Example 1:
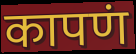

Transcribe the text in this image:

कापणं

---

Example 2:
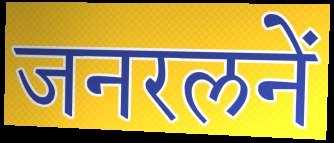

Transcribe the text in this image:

जनरलनें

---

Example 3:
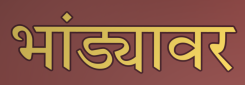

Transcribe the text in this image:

भांड्यावर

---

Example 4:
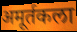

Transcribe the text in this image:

अमूर्तकला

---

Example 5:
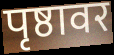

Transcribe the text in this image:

पृष्ठावर